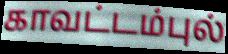
காவட்டம்புல்